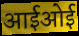
आईओई